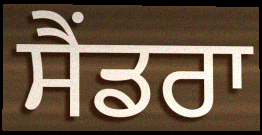
ਸੈਂਡਰਾ